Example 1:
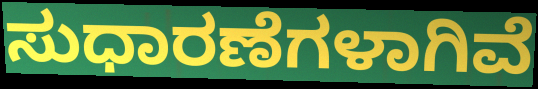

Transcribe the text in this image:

ಸುಧಾರಣೆಗಳಾಗಿವೆ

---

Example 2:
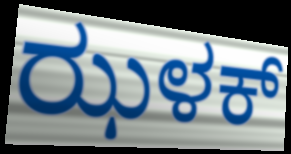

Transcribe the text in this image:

ಝಳಕ್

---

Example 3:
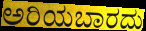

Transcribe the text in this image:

ಅರಿಯಬಾರದು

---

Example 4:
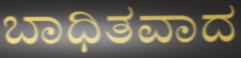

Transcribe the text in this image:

ಬಾಧಿತವಾದ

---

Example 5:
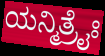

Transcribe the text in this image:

ಯನ್ಮಿತ್ರೈಃ